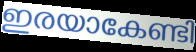
ഇരയാകേണ്ടി